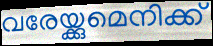
വരേയ്ക്കുമെനിക്ക്